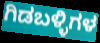
ಗಿಡಬಳ್ಳಿಗಳ